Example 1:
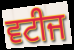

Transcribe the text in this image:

ਵਟੀਜ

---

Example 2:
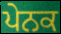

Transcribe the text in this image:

ਪੇਨਕ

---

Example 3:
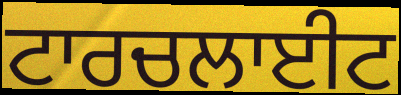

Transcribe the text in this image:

ਟਾਰਚਲਾਈਟ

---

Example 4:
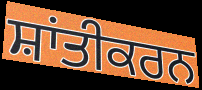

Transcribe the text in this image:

ਸ਼ਾਂਤੀਕਰਨ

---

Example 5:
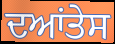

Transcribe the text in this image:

ਦਆਂਤੇਸ